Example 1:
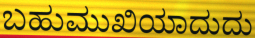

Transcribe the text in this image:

ಬಹುಮುಖಿಯಾದುದು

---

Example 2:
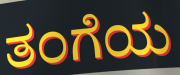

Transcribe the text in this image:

ತಂಗೆಯ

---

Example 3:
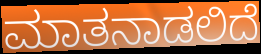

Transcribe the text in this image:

ಮಾತನಾಡಲಿದೆ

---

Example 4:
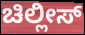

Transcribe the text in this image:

ಚಿಲ್ಲೀಸ್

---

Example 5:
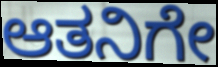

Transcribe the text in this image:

ಆತನಿಗೇ